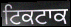
ਟਿਕਟਾਕ